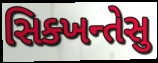
સિક્ખન્તેસુ